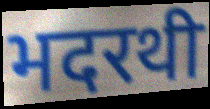
भदरथी